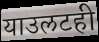
याउलटही